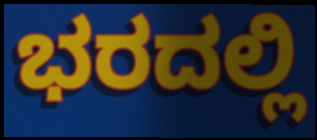
ಭರದಲ್ಲಿ